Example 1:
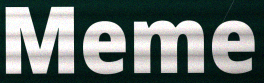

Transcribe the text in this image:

Meme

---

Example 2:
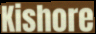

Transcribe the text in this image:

Kishore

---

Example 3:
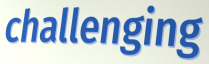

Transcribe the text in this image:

challenging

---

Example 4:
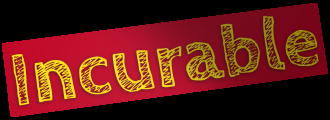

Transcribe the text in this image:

Incurable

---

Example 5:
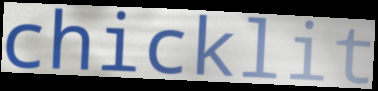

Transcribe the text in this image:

chicklit